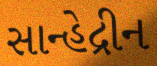
સાન્હેદ્રીન